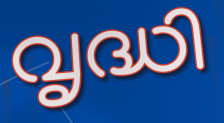
വൃദ്ധി